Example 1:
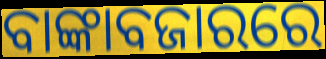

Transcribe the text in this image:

ବାଙ୍କାବଜାରରେ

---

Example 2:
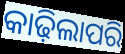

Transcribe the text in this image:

କାଢ଼ିଲାପରି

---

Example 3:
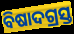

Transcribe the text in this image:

ବିଷାଦଗ୍ରସ୍ତ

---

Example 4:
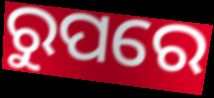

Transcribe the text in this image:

ରୁପରେ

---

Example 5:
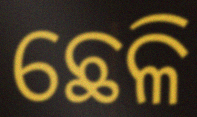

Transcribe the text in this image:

ଛେଳି